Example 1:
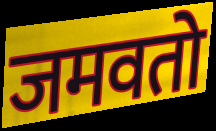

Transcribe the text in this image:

जमवतो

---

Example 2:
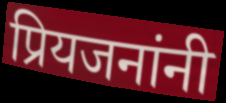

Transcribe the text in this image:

प्रियजनांनी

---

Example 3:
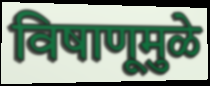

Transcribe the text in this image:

विषाणूमुळे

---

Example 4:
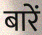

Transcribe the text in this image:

बारें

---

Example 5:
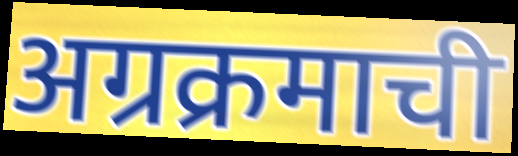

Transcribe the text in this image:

अग्रक्रमाची